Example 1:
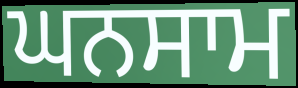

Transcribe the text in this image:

ਘਨਸਾਮ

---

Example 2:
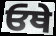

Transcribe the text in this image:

ਓਥੇ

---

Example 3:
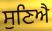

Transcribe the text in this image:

ਸੁਣਿਐ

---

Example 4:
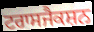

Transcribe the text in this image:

ਟਰਾਸਜੈਕਸ਼ਨ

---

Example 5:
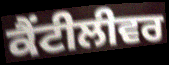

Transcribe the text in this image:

ਕੈਂਟੀਲੀਵਰ